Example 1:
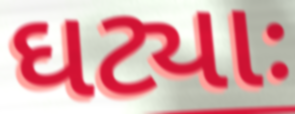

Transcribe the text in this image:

ઘટ્યાઃ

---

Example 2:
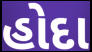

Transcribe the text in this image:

હોદા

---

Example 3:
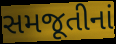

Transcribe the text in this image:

સમજૂતીનાં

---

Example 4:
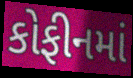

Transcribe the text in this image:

કોફીનમાં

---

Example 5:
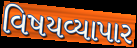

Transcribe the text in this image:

વિષયવ્યાપાર